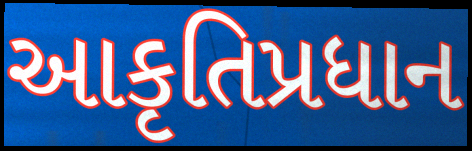
આકૃતિપ્રધાન